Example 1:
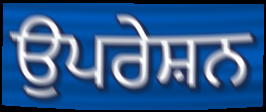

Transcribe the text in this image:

ਉਪਰੇਸ਼ਨ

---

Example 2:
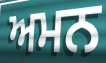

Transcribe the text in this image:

ਅਮਨ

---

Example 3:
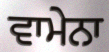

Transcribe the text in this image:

ਵਾਮੇਨਾ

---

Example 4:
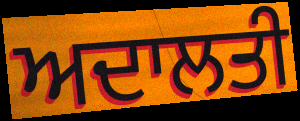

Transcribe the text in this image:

ਅਦਾਲਤੀ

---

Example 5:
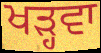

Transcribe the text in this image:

ਖੜ੍ਹਵਾ